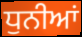
ਧੁਨੀਆਂ